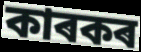
কাৰকৰ